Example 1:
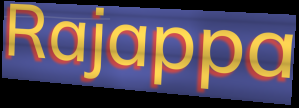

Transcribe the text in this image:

Rajappa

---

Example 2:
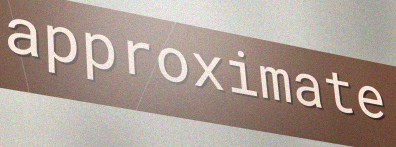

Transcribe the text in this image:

approximate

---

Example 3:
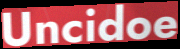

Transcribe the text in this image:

Uncidoe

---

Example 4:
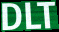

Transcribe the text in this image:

DLT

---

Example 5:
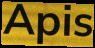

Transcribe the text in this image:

Apis